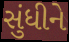
સુંધીને